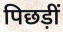
पिछड़ीं